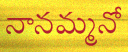
నానమ్మనో